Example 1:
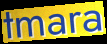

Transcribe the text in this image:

tmara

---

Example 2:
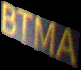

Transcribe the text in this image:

BTMA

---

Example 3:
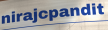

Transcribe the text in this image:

nirajcpandit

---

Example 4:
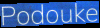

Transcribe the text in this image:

Podouke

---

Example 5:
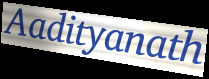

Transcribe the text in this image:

Aadityanath